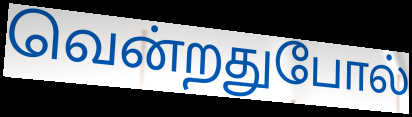
வென்றதுபோல்